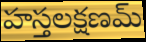
హస్తలక్షణమ్